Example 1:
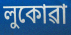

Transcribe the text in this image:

লুকোৱা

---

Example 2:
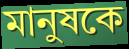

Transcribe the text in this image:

মানুষকে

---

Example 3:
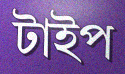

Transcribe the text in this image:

টাইপ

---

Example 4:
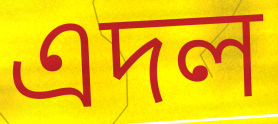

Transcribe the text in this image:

এদল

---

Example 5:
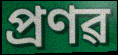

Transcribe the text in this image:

প্ৰণৱ